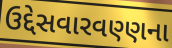
ઉદ્દેસવારવણ્ણના